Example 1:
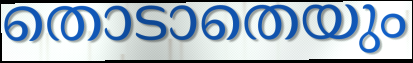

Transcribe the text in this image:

തൊടാതെയും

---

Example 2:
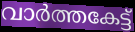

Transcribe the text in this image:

വാർത്തകേട്ട്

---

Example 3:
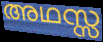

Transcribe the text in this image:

അഥസ്സ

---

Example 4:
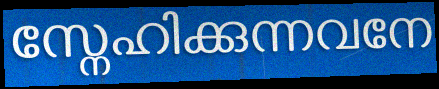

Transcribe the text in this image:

സ്നേഹിക്കുന്നവനേ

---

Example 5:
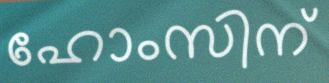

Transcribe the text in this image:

ഹോംസിന്